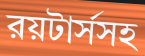
রয়টার্সসহ